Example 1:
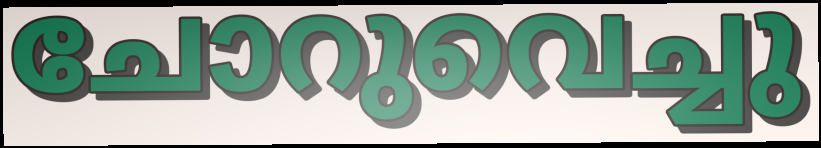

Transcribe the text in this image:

ചോറുവെച്ചു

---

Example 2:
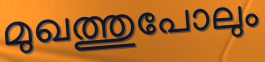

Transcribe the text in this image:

മുഖത്തുപോലും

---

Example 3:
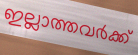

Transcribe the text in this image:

ഇല്ലാത്തവർക്ക്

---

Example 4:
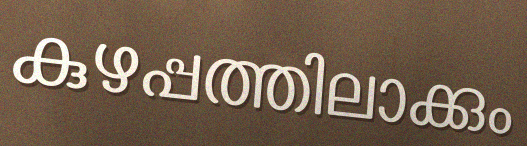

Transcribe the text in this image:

കുഴപ്പത്തിലാക്കും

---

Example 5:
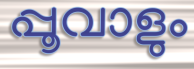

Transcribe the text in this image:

പ്പൂവാളും